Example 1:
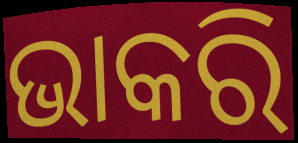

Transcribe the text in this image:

ଭାକରି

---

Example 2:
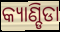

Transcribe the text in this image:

କ୍ୟାଣ୍ଡିଡା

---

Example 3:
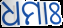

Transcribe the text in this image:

ଧମାଃ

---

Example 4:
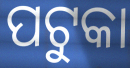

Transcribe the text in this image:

ପଟୁକା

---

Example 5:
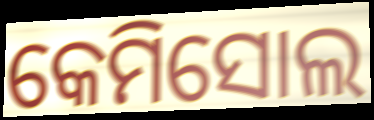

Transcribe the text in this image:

କେମିସୋଲ